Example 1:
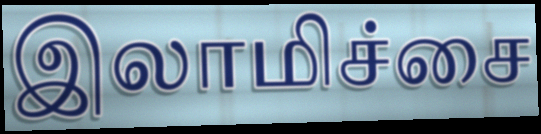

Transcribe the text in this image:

இலாமிச்சை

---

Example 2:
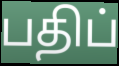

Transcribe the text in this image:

பதிப்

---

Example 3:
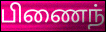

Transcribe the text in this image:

பிணைந்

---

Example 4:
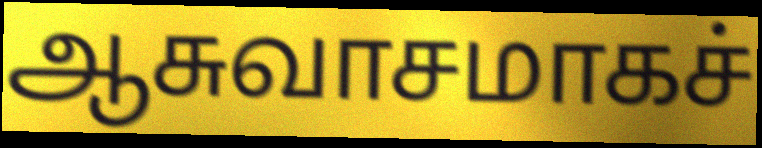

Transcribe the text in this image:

ஆசுவாசமாகச்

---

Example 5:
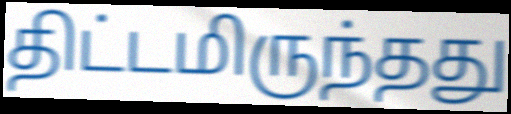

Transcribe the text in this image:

திட்டமிருந்தது